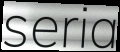
seria